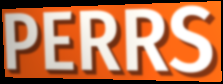
PERRS